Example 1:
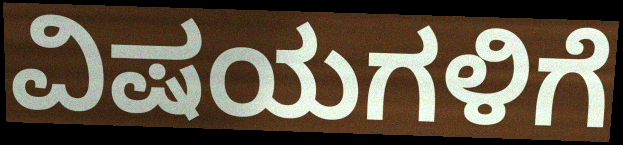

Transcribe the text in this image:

ವಿಷಯಗಳಿಗೆ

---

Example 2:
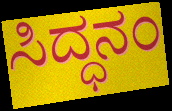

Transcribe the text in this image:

ಸಿದ್ಧನಂ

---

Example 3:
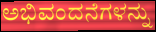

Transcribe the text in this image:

ಅಭಿವಂದನೆಗಳನ್ನು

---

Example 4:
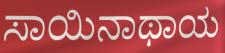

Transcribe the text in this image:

ಸಾಯಿನಾಥಾಯ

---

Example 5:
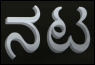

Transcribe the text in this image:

ನಟ